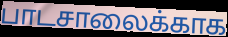
பாடசாலைக்காக